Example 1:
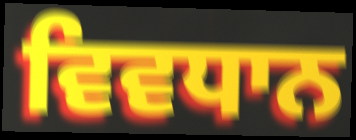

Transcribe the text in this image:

ਵਿਵਧਾਨ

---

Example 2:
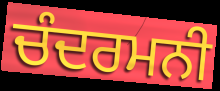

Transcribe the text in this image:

ਚੰਦਰਮਨੀ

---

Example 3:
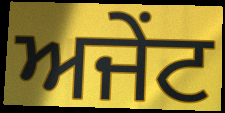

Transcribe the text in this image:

ਅਜੇਂਟ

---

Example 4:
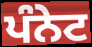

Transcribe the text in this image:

ਪੰਨੇਟ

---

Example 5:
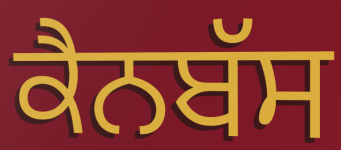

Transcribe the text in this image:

ਕੈਨਬੱਸ